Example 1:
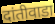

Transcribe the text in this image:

दांतीवाडा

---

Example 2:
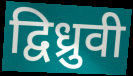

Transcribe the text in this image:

द्विध्रुवी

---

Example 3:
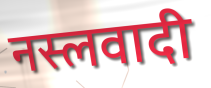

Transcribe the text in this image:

नस्लवादी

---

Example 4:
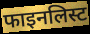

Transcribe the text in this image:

फाइनलिस्ट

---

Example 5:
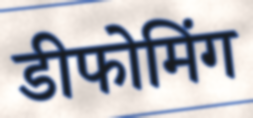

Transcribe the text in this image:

डीफोमिंग